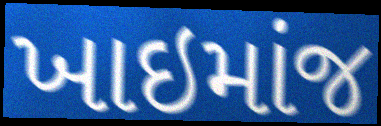
ખાઇમાંજ